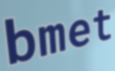
bmet